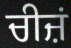
ਚੀਜ਼ਂ